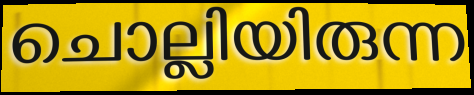
ചൊല്ലിയിരുന്ന